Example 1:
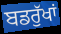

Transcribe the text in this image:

ਬਡਰੁੱਖਾਂ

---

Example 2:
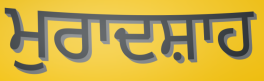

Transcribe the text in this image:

ਮੁਰਾਦਸ਼ਾਹ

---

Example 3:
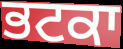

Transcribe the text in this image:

ਭਟਕਾ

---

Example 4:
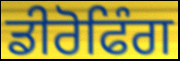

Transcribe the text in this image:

ਡੀਰੋਫਿੰਗ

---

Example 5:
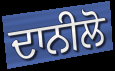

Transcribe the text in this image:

ਦਾਨੀਲੋ